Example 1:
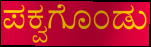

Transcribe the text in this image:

ಪಕ್ವಗೊಂಡು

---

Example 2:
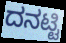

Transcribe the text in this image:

ದನಟ್ಟಿ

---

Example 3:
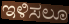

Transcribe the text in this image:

ಇಳಿಸಲೂ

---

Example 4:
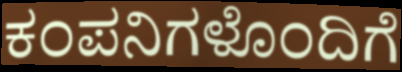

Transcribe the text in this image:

ಕಂಪನಿಗಳೊಂದಿಗೆ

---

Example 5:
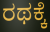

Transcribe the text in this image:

ರಥಕ್ಕೆ